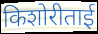
किशोरीताई